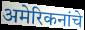
अमेरिकनांचे